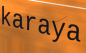
karaya